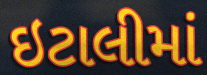
ઇટાલીમાં